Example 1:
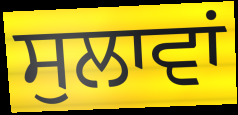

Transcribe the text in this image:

ਸੁਲਾਵਾਂ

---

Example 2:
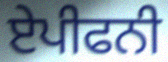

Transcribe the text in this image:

ਏਪੀਫਨੀ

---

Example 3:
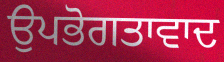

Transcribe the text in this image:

ਉਪਭੋਗਤਾਵਾਦ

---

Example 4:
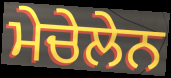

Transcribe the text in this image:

ਮੇਚੇਲੇਨ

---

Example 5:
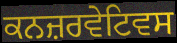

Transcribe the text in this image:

ਕਨਜ਼ਰਵੇਟਿਵਸ